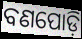
ବଣପୋଡ଼ି